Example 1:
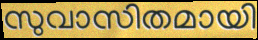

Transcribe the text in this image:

സുവാസിതമായി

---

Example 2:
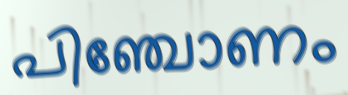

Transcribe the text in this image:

പിഞ്ചോണം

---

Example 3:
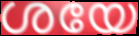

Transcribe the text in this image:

ശയേ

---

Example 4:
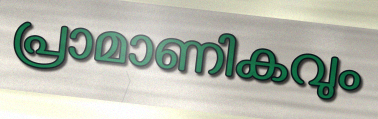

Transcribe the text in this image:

പ്രാമാണികവും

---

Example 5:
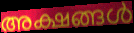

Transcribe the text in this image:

അക്ഷങ്ങൾ